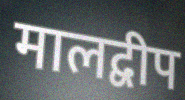
मालद्वीप